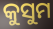
କୁସୁମ